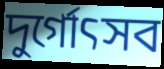
দুর্গোৎসব